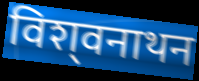
विश्वनाथन